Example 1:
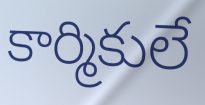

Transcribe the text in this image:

కార్మికులే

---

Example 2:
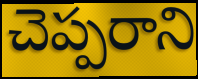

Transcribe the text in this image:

చెప్పరాని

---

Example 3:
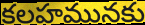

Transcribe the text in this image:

కలహమునకు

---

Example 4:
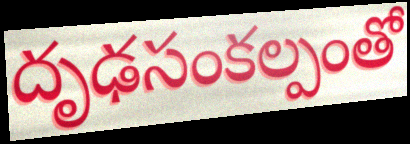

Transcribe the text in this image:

దృఢసంకల్పంతో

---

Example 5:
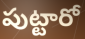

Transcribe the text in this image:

పుట్టారో